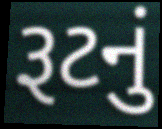
રૂટનું